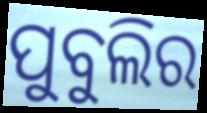
ପୁବୁଲିର